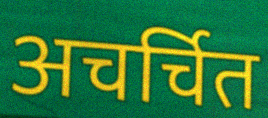
अचर्चित